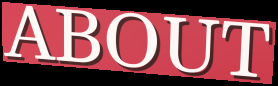
ABOUT